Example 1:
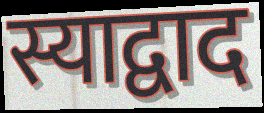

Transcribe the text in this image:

स्याद्वाद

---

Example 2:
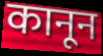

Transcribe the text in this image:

कानून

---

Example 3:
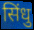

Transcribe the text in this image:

सिंधु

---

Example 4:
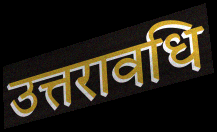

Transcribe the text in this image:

उत्तरावधि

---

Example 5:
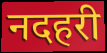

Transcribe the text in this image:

नदहरी